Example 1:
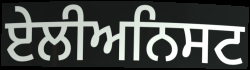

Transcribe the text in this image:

ਏਲੀਅਨਿਸਟ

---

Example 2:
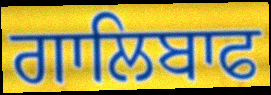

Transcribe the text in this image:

ਗਾਲਿਬਾਫ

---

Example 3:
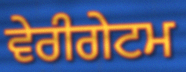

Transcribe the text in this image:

ਵੇਰੀਗੇਟਮ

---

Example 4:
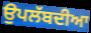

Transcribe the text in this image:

ਉਪਲੱਬਦੀਆ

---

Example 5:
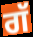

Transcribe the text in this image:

ਗੱ